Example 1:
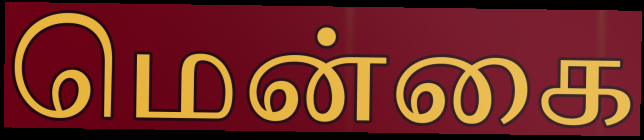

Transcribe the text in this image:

மென்கை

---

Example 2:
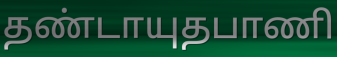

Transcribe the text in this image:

தண்டாயுதபாணி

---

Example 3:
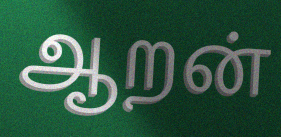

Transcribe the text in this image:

ஆறன்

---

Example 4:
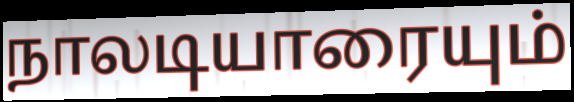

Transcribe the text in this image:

நாலடியாரையும்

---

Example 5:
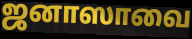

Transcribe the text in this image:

ஜனாஸாவை